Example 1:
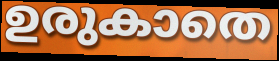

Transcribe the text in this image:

ഉരുകാതെ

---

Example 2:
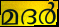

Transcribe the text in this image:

മദർ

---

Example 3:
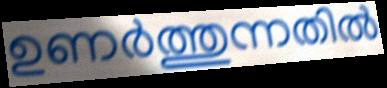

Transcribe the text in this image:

ഉണർത്തുന്നതിൽ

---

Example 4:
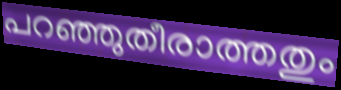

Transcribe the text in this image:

പറഞ്ഞുതീരാത്തതും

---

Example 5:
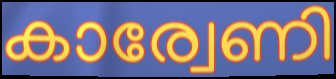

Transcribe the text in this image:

കാര്വേണി